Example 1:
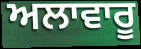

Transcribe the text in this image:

ਅਲਾਵਾਰੂ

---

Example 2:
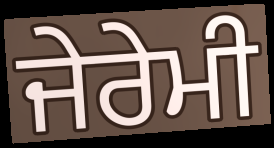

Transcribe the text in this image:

ਜੇਰੇਮੀ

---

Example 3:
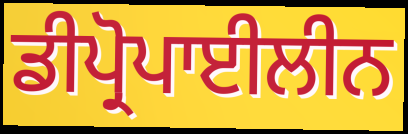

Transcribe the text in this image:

ਡੀਪ੍ਰੋਪਾਈਲੀਨ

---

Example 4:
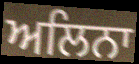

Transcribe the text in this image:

ਅਲਿਨਾ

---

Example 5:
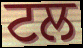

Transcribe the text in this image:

ਟਲ